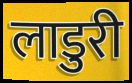
लाडुरी